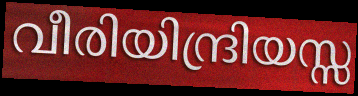
വീരിയിന്ദ്രിയസ്സ